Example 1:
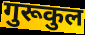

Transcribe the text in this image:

गुरूकुल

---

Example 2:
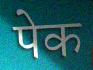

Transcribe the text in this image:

पेक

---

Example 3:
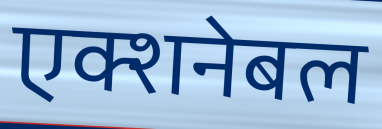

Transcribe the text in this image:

एक्शनेबल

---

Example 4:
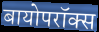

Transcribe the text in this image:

बायोपरॉक्स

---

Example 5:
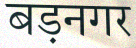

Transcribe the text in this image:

बड़नगर